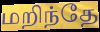
மறிந்தே